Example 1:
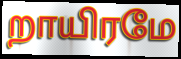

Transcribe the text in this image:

றாயிரமே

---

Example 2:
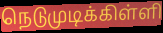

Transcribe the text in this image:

நெடுமுடிக்கிள்ளி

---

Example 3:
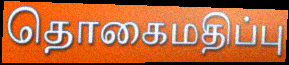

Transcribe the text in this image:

தொகைமதிப்பு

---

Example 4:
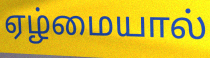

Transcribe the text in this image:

ஏழ்மையால்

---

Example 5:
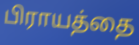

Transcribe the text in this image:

பிராயத்தை